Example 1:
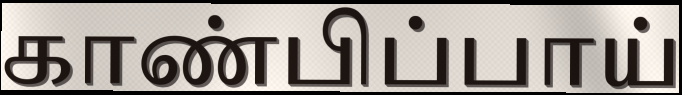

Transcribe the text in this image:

காண்பிப்பாய்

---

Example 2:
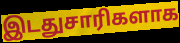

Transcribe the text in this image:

இடதுசாரிகளாக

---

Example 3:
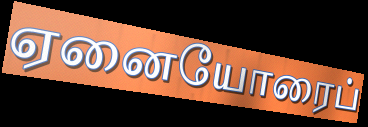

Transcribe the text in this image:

ஏனையோரைப்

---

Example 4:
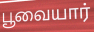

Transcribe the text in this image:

பூவையார்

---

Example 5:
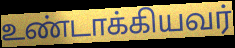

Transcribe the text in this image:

உண்டாக்கியவர்